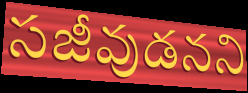
సజీవుడనని